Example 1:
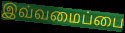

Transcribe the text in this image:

இவ்வமைப்பை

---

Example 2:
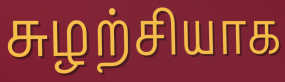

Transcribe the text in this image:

சுழற்சியாக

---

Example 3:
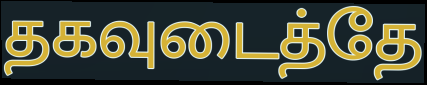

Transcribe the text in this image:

தகவுடைத்தே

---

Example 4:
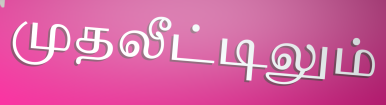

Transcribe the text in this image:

முதலீட்டிலும்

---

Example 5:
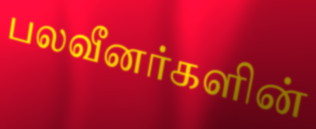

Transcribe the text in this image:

பலவீனர்களின்